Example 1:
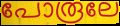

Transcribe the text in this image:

പോരൂലേ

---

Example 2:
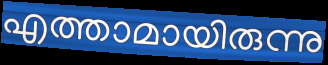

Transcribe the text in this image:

എത്താമായിരുന്നു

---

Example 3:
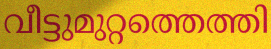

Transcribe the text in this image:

വീട്ടുമുറ്റത്തെത്തി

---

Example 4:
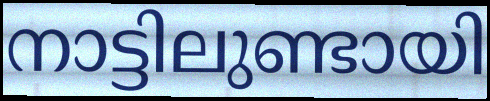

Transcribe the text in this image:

നാട്ടിലുണ്ടായി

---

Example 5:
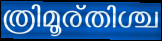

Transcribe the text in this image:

ത്രിമൂര്തിശ്ച